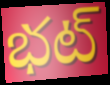
భట్